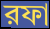
রফা